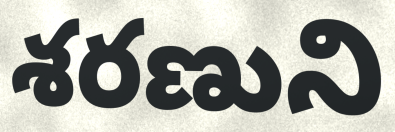
శరణుని